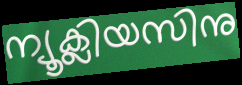
ന്യൂക്ലിയസിനു